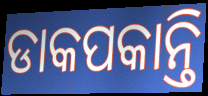
ଡାକପକାନ୍ତି